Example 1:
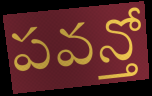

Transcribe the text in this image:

పవన్తో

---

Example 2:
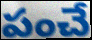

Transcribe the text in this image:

పంచే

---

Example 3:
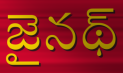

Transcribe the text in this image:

జైనథ్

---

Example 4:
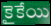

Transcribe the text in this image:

కైకేయి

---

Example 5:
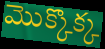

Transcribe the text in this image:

మొక్కొక్క